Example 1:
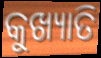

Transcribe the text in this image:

କୁଖ୍ୟାତି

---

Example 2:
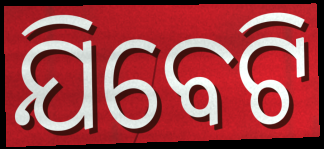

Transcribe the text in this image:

ଯିବେଟି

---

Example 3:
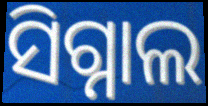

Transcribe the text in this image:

ସିଗ୍ନାଲ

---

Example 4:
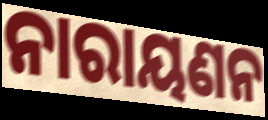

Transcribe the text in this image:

ନାରାୟଣନ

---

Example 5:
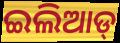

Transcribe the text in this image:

ଇଲିଆଡ୍